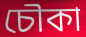
চৌকা